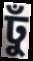
ঢুঁ